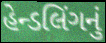
હેન્ડલિંગનું